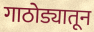
गाठोड्यातून